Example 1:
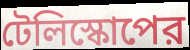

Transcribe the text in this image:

টেলিস্কোপের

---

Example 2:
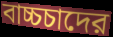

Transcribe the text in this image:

বাচ্চচাদের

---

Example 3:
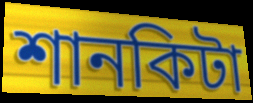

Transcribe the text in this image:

শানকিটা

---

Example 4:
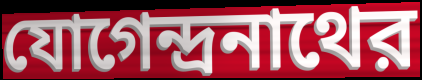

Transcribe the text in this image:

যোগেন্দ্রনাথের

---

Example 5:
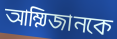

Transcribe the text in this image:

আম্মিজানকে